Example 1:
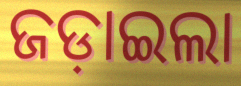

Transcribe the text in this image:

ଜଡ଼ାଇଲା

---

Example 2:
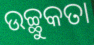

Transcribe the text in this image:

ଉଚ୍ଛୁକତା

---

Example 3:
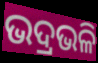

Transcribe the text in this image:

ଭଦ୍ରଭଳି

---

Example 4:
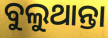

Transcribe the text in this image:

ବୁଲୁଥାନ୍ତା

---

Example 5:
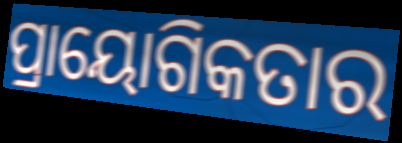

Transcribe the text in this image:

ପ୍ରାୟୋଗିକତାର